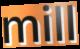
mill